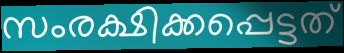
സംരക്ഷിക്കപ്പെട്ടത്